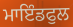
ਮਾਇੰਡਫੁਲ